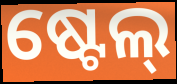
ଷ୍ଟେଲ୍